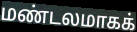
மண்டலமாகக்